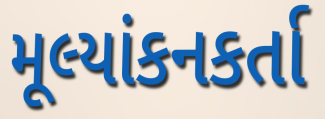
મૂલ્યાંકનકર્તા